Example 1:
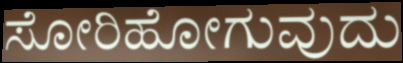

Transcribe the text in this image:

ಸೋರಿಹೋಗುವುದು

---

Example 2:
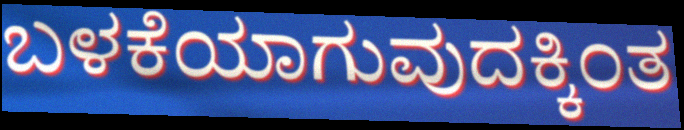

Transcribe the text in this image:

ಬಳಕೆಯಾಗುವುದಕ್ಕಿಂತ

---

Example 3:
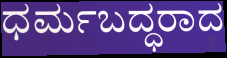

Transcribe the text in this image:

ಧರ್ಮಬದ್ಧರಾದ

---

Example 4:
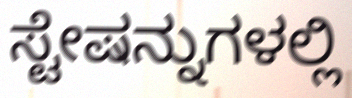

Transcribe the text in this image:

ಸ್ಟೇಷನ್ನುಗಳಲ್ಲಿ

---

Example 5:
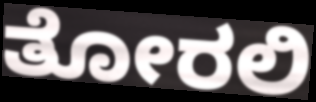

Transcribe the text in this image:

ತೋರಲಿ